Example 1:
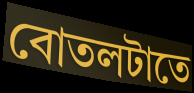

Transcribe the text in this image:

বোতলটাতে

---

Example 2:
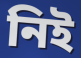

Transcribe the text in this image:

নিই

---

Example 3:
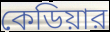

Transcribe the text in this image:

কেডিয়ার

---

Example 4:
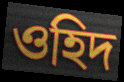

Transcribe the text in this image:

ওহিদ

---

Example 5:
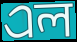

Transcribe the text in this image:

এল